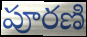
పూరణి